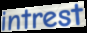
intrest